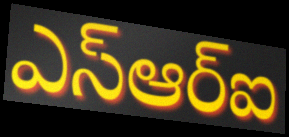
ఎస్ఆర్ఐ